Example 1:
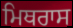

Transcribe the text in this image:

ਮਿਥਰਾਸ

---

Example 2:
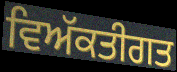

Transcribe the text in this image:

ਵਿਅੱਕਤੀਗਤ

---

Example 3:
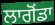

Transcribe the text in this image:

ਲਾਗੋਂਡਾ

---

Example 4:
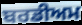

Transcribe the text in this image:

ਬਰਡੀਅਮ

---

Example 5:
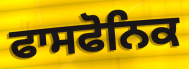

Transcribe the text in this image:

ਫਾਸਫੋਨਿਕ